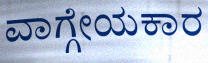
ವಾಗ್ಗೇಯಕಾರ